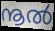
നൂൽ